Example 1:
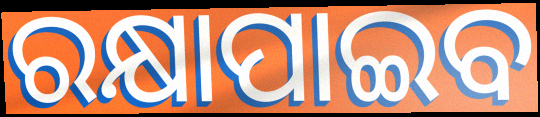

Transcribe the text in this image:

ରକ୍ଷାପାଇବ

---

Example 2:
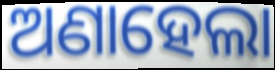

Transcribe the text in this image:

ଅଣାହେଲା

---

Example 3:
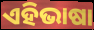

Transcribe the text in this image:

ଏହିଭାଷା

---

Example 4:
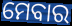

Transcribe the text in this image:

ମେବାର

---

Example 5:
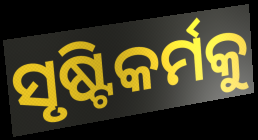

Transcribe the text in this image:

ସୃଷ୍ଟିକର୍ମକୁ